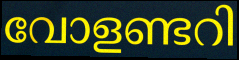
വോളണ്ടറി